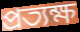
প্রত্যক্ষ